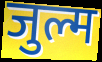
जुल्म